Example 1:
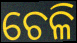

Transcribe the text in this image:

ଚେଳି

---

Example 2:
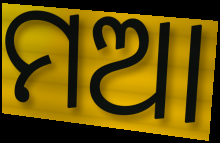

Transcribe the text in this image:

ମଆ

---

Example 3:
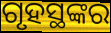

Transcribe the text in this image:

ଗୃହସ୍ଥଙ୍କର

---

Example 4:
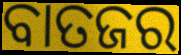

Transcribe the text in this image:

ବାତଜର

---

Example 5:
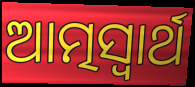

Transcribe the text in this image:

ଆତ୍ମସ୍ଵାର୍ଥ